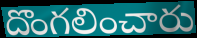
దొంగలించారు